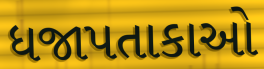
ધજાપતાકાઓ